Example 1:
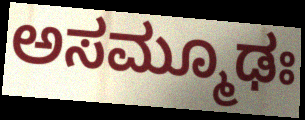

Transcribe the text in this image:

ಅಸಮ್ಮೂಢಃ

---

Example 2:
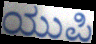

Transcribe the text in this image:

ಯುಪಿ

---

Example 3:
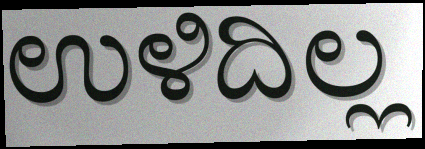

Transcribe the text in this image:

ಉಳಿದಿಲ್ಲ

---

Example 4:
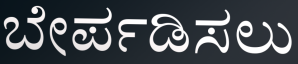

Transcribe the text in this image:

ಬೇರ್ಪಡಿಸಲು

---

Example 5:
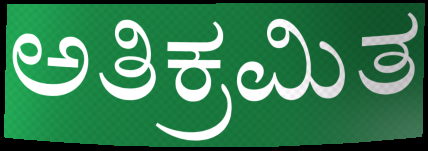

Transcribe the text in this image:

ಅತಿಕ್ರಮಿತ